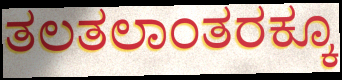
ತಲತಲಾಂತರಕ್ಕೂ